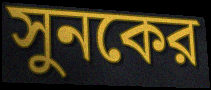
সুনকের